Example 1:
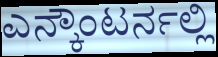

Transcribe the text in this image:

ಎನ್ಕೌಂಟರ್ನಲ್ಲಿ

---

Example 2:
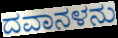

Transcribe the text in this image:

ದವಾನಳನು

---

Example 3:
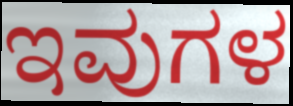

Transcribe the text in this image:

ಇವುಗಳ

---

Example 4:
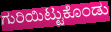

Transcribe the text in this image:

ಗುರಿಯಿಟ್ಟುಕೊಂಡು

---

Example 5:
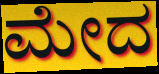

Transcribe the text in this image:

ಮೇದ